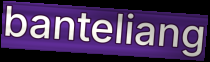
banteliang